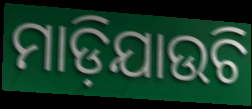
ମାଡ଼ିଯାଉଚି